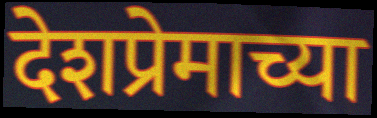
देशप्रेमाच्या